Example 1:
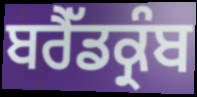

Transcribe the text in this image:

ਬਰੈੱਡਕ੍ਰੰਬ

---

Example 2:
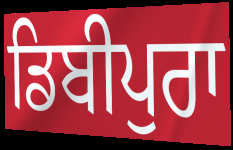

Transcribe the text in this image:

ਡਿਬੀਪੁਰਾ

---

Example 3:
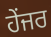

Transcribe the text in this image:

ਹੇਂਜਰ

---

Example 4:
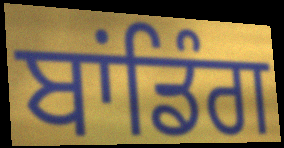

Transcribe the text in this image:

ਬਾਂਡਿੰਗ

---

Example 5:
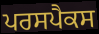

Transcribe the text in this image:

ਪਰਸਪੈਕਸ